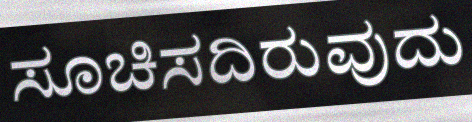
ಸೂಚಿಸದಿರುವುದು